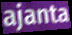
ajanta